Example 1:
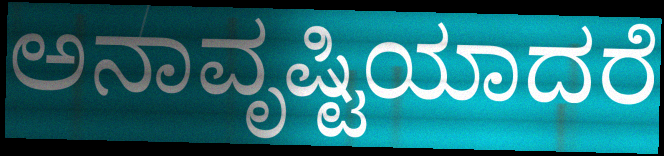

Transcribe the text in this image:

ಅನಾವೃಷ್ಟಿಯಾದರೆ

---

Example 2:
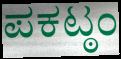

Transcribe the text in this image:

ಪಕಟ್ಠಂ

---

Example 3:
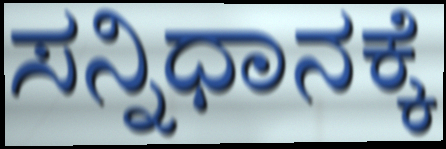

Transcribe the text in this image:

ಸನ್ನಿಧಾನಕ್ಕೆ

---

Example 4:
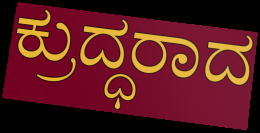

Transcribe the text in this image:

ಕ್ರುದ್ಧರಾದ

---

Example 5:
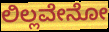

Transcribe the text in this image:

ಲಿಲ್ಲವೇನೋ